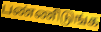
பண்ணிடுங்க